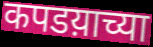
कपडय़ाच्या